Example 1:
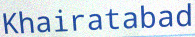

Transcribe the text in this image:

Khairatabad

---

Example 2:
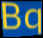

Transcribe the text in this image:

Bq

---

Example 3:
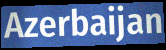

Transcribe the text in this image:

Azerbaijan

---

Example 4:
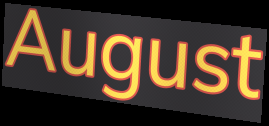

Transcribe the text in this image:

August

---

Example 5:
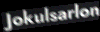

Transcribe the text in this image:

Jokulsarlon